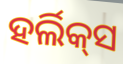
ହର୍ଲିକ୍‌ସ